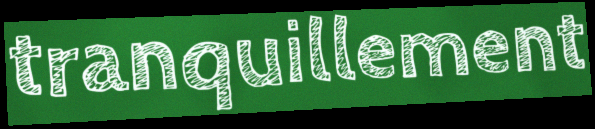
tranquillement